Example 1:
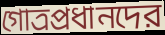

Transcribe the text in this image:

গোত্রপ্রধানদের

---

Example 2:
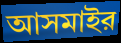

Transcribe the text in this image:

আসমাইর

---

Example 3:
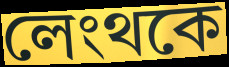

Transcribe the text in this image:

লেংথকে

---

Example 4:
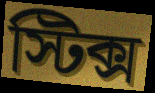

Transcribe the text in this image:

স্টিক্স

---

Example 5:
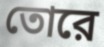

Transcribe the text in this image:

তোরে